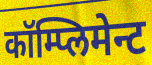
कॉम्प्लिमेन्ट